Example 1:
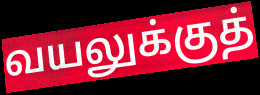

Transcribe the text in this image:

வயலுக்குத்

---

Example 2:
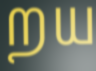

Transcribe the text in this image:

றய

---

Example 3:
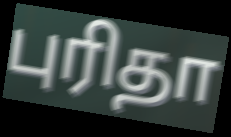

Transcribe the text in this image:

புரிதா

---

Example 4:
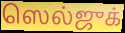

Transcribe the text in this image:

ஸெல்ஜுக்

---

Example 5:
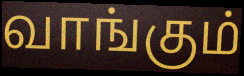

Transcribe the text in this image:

வாங்கும்